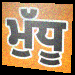
ਮੁੱਧੂ